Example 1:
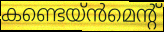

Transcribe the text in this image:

കണ്ടെയ്ൻമെന്റ്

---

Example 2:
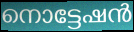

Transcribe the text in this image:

നൊട്ടേഷൻ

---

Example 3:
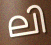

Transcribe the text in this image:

ലി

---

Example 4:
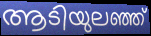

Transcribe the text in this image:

ആടിയുലഞ്ഞ്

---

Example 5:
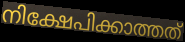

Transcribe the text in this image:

നിക്ഷേപിക്കാത്തത്